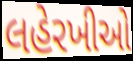
લહેરખીઓ